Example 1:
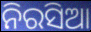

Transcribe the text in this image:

ନିରସିଆ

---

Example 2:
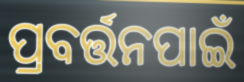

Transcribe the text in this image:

ପ୍ରବର୍ତ୍ତନପାଇଁ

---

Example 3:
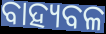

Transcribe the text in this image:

ବାହ୍ୟବଳ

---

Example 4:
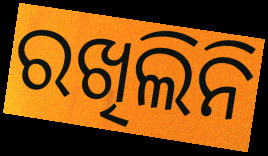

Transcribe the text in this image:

ରଖିଲିନି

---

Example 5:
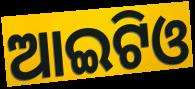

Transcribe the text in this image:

ଆଇଟିଓ